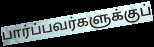
பார்ப்பவர்களுக்குப்